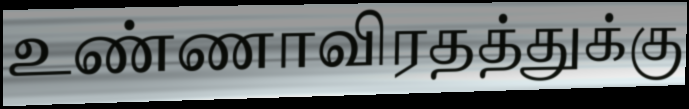
உண்ணாவிரதத்துக்கு